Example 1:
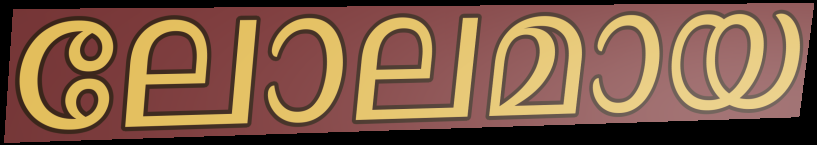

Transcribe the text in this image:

ലോലമായ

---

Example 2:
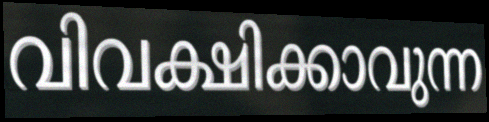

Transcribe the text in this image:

വിവക്ഷിക്കാവുന്ന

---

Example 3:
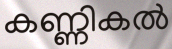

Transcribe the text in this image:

കണ്ണികൽ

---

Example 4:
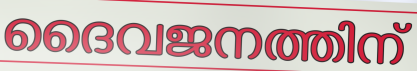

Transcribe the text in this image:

ദൈവജനത്തിന്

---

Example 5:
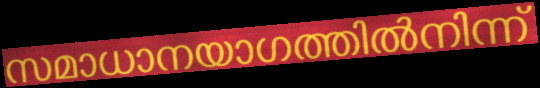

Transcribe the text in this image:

സമാധാനയാഗത്തിൽനിന്ന്